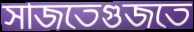
সাজতেগুজতে